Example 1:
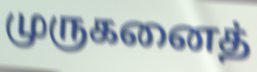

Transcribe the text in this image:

முருகனைத்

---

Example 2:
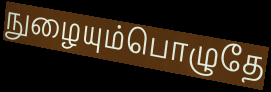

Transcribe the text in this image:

நுழையும்பொழுதே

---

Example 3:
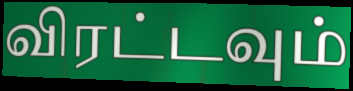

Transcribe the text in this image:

விரட்டவும்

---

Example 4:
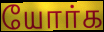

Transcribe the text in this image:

யோர்க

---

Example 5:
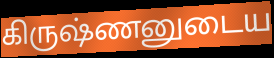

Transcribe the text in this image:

கிருஷ்ணனுடைய